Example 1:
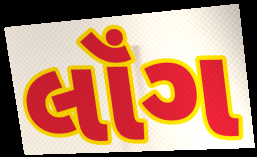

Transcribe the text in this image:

લૉંગ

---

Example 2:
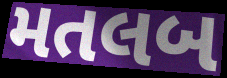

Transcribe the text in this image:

મતલબ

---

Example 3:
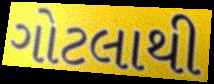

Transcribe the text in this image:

ગોટલાથી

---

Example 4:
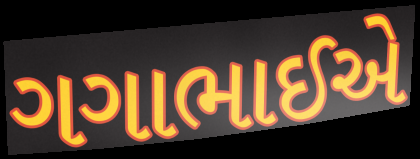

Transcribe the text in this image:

ગગાભાઈએ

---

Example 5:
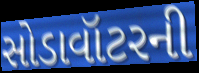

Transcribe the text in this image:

સોડાવૉટરની